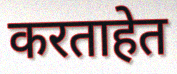
करताहेत